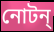
নোটন্